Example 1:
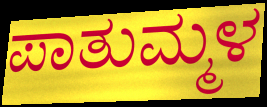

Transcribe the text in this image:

ಪಾತುಮ್ಮಳ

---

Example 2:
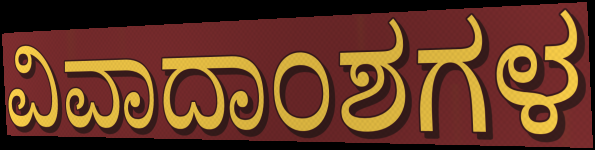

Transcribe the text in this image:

ವಿವಾದಾಂಶಗಳ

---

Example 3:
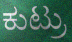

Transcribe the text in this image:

ಕುಟ್ರು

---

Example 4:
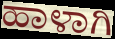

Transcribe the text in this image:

ಹಾಳಾಗಿ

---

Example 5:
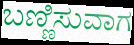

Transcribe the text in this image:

ಬಣ್ಣಿಸುವಾಗ